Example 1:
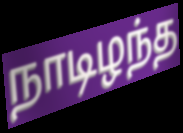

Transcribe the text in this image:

நாடிழந்த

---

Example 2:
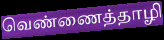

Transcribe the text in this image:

வெண்ணைத்தாழி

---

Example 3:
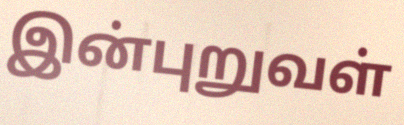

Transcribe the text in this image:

இன்புறுவள்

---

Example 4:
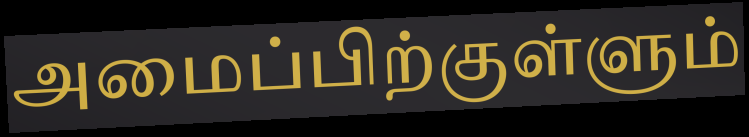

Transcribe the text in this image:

அமைப்பிற்குள்ளும்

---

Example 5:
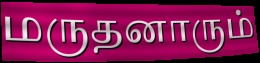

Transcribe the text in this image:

மருதனாரும்